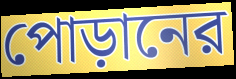
পোড়ানের